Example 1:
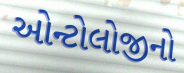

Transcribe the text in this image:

ઓન્ટોલોજીનો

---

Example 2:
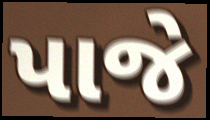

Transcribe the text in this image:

પાજે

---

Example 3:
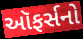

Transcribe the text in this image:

ઑફર્સનો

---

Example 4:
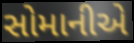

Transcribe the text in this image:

સોમાનીએ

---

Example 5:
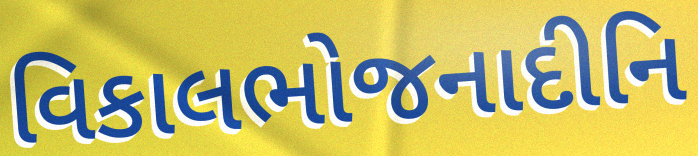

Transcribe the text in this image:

વિકાલભોજનાદીનિ